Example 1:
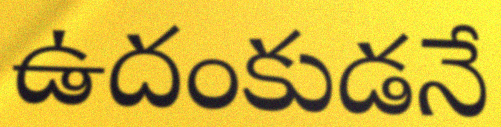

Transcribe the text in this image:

ఉదంకుడనే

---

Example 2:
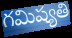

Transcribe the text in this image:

గమిష్యతి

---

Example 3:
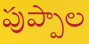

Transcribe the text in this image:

పుప్పాల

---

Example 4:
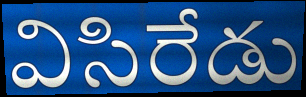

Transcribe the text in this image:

విసిరేడు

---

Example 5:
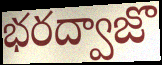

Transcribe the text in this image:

భరద్వాజొ